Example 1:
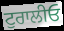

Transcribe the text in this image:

ਟੁਰਾਲੀਓ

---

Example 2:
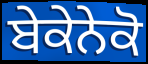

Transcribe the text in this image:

ਬੇਕੇਨੇਕੋ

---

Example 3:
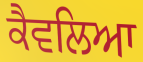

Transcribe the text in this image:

ਕੈਵਲਿਆ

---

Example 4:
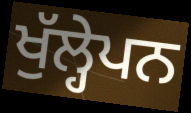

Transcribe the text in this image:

ਖੁੱਲ੍ਹੇਪਨ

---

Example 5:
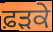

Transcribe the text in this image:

ਫ਼ਡ਼ਕੇ